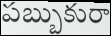
పబ్బుకురా